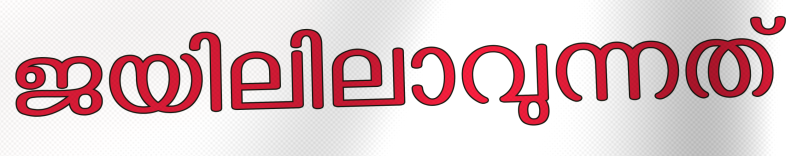
ജയിലിലാവുന്നത്